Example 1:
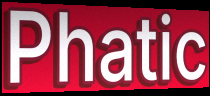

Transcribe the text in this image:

Phatic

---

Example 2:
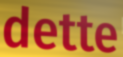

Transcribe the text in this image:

dette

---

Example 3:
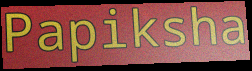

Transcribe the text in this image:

Papiksha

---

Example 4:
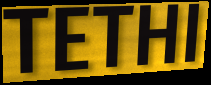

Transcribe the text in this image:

TETHI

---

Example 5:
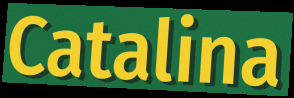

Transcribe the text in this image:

Catalina